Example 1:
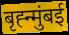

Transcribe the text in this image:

बृह्न्मुंबई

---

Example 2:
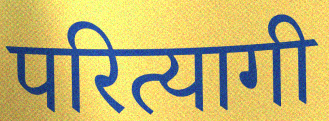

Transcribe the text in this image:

परित्यागी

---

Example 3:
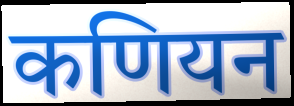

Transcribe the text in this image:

कणियन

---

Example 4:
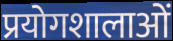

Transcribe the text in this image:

प्रयोगशालाओं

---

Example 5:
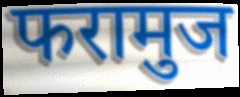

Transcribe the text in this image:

फरामुज